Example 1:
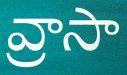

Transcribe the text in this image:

వ్రాసా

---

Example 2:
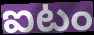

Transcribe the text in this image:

ఐటం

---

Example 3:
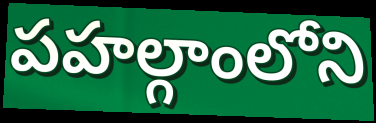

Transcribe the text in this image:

పహల్గాంలోని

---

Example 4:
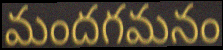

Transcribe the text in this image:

మందగమనం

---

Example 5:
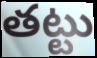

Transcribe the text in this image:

తట్టు